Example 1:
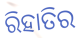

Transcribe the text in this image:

ରିହାତିର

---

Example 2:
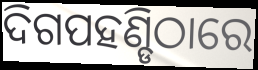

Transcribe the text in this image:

ଦିଗପହଣ୍ଡିଠାରେ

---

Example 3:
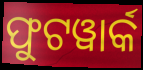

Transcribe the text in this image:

ଫୁଟୱାର୍କ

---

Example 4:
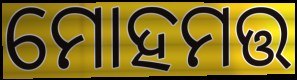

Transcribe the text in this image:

ମୋହମତ୍ତ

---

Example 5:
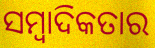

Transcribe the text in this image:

ସମ୍ୱାଦିକତାର